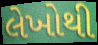
લેખોથી